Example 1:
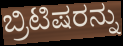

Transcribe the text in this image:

ಬ್ರಿಟಿಷರನ್ನು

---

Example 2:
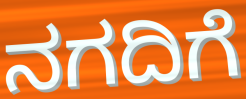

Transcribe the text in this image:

ನಗದಿಗೆ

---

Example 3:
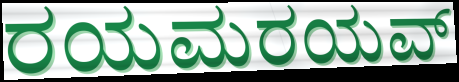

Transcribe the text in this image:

ರಯಮರಯವ್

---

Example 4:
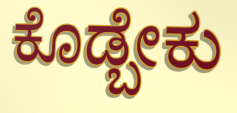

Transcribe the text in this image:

ಕೊಡ್ಬೇಕು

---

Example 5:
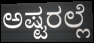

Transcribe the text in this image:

ಅಷ್ಟರಲ್ಲೆ